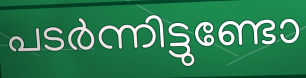
പടർന്നിട്ടുണ്ടോ